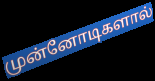
முன்னோடிகளால்